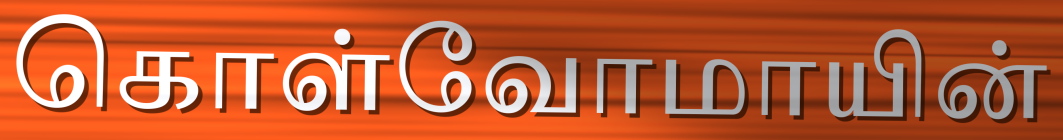
கொள்வோமாயின்